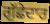
ਗੁੱਛੇਦਾਰ